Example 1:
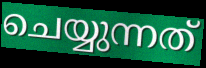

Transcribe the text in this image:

ചെയ്യുന്നത്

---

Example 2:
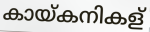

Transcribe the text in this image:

കായ്കനികള്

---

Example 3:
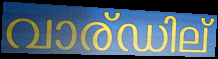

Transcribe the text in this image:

വാര്ഡില്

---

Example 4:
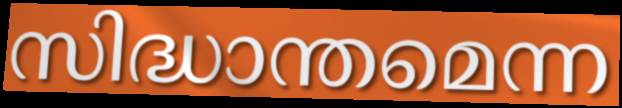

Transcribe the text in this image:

സിദ്ധാന്തമെന്ന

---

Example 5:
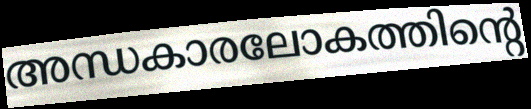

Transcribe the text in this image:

അന്ധകാരലോകത്തിന്റെ